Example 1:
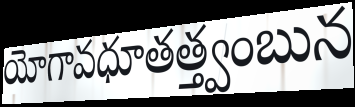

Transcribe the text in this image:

యోగావధూతత్త్వంబున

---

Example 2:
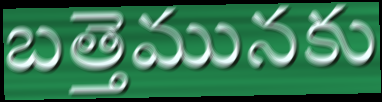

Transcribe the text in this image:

బత్తెమునకు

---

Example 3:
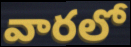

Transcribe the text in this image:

వారలో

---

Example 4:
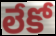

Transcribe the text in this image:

లేకో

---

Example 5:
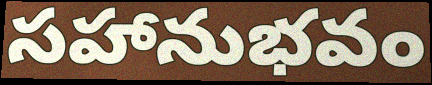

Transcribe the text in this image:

సహానుభవం